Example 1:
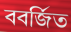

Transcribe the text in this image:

ববর্জিত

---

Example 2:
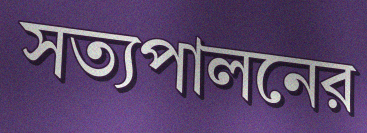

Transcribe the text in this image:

সত্যপালনের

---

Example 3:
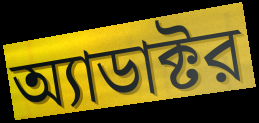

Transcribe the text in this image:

অ্যাডাক্টর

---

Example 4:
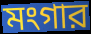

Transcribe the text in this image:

মংগার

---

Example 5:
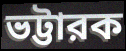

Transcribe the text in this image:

ভট্টারক